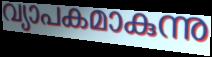
വ്യാപകമാകുന്നു